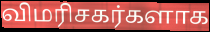
விமரிசகர்களாக